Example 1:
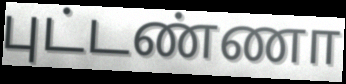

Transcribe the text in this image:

புட்டண்ணா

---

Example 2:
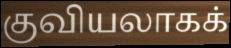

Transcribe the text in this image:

குவியலாகக்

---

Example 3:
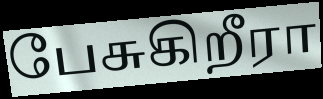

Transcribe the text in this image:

பேசுகிறீரா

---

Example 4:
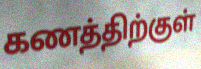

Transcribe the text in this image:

கணத்திற்குள்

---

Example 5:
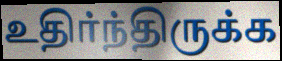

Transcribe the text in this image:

உதிர்ந்திருக்க